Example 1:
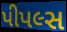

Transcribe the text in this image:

પીપલ્સ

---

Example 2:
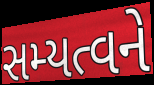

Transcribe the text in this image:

સમ્યત્વને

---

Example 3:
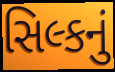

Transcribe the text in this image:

સિલ્કનું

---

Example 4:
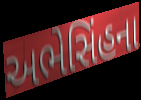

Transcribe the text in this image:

અભેસિંહના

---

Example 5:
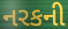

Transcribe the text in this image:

નરકની